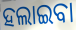
ହଲାଇବା